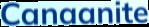
Canaanite